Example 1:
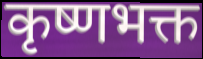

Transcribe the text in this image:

कृष्णभक्त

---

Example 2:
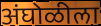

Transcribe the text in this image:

अंघोळीला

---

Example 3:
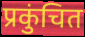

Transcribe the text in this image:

प्रकुंचित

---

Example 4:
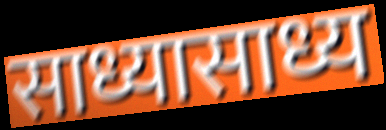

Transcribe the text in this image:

साध्यासाध्य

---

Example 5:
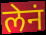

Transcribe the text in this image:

लेनं